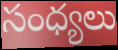
సంధ్యలు